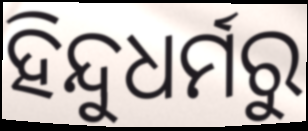
ହିନ୍ଦୁଧର୍ମରୁ